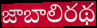
జాబాలిరథ